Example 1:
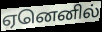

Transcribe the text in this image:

ஏனெனில்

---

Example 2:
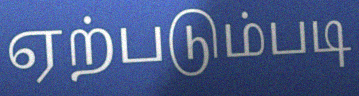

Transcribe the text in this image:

ஏற்படும்படி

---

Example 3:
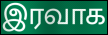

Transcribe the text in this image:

இரவாக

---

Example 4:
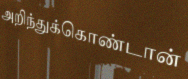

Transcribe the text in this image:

அறிந்துக்கொண்டான்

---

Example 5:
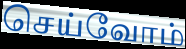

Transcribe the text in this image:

செய்வோம்